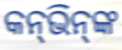
କନ୍‌ଭିନ୍‌ଙ୍କ